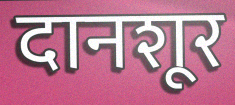
दानशूर